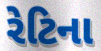
રેટિના